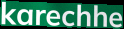
karechhe